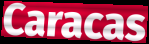
Caracas